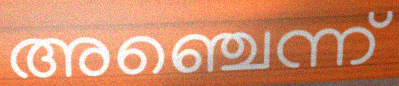
അഞ്ചെന്ന്